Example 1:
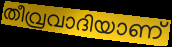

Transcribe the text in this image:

തീവ്രവാദിയാണ്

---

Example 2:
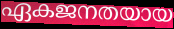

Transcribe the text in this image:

ഏകജനതയായ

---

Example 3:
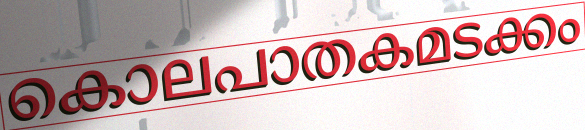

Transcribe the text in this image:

കൊലപാതകമടക്കം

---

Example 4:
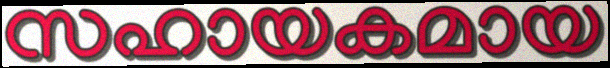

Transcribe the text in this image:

സഹായകമായ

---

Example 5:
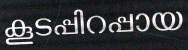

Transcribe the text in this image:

കൂടപ്പിറപ്പായ